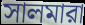
সালমারা